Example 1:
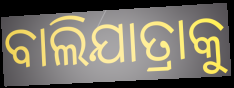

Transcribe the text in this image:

ବାଲିଯାତ୍ରାକୁ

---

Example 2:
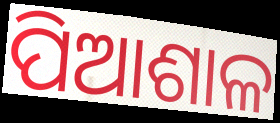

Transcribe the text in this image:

ପିଆଶାଳ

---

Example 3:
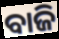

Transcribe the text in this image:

ବାଜି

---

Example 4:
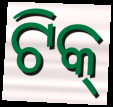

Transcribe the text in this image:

ଟିକ୍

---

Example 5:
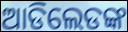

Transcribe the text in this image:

ଆଡିଲେଡଙ୍କ